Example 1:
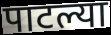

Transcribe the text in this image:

पाटल्या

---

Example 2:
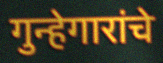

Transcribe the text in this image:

गुन्हेगारांचे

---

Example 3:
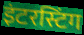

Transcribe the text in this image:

इंटरस्टिंग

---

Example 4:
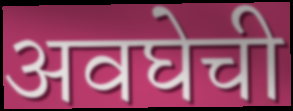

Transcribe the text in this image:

अवघेची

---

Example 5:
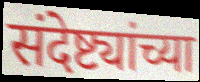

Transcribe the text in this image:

संदेष्ट्यांच्या